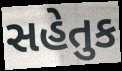
સહેતુક